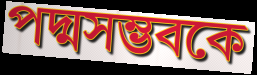
পদ্মসম্ভবকে